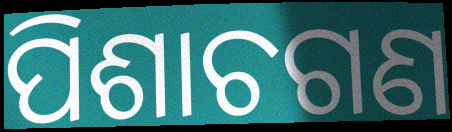
ପିଶାଚଗଣ